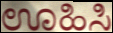
ಊಹಿಸಿ